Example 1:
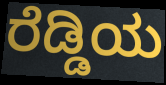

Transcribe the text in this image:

ರೆಡ್ಡಿಯ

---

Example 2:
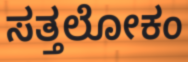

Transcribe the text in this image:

ಸತ್ತಲೋಕಂ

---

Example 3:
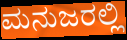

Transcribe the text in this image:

ಮನುಜರಲ್ಲಿ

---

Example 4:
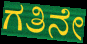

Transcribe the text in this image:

ಗತಿನೇ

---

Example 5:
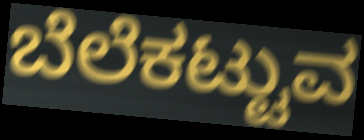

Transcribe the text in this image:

ಬೆಲೆಕಟ್ಟುವ